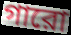
গারো